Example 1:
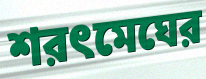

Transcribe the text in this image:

শরৎমেঘের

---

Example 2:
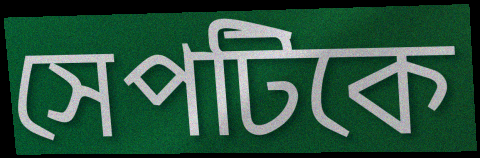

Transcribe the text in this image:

সেপটিকে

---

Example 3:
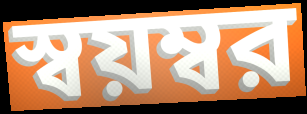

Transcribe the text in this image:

স্বয়ম্বর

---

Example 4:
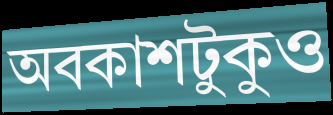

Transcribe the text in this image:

অবকাশটুকুও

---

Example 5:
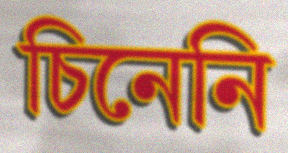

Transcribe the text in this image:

চিনেনি